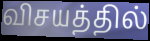
விசயத்தில்